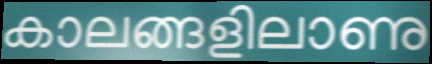
കാലങ്ങളിലാണു